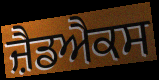
ਜ਼ੈਡਐਕਸ